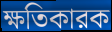
ক্ষতিকারক